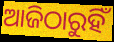
ଆଜିଠାରୁହିଁ